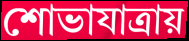
শোভাযাত্রায়